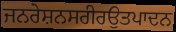
ਜਨਰੇਸ਼ਨਸਰੀਰਉਤਪਾਦਨ